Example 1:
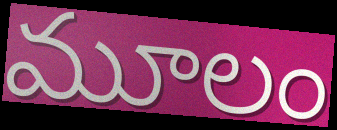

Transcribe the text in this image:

మూలం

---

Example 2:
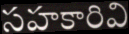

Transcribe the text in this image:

సహకారివి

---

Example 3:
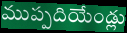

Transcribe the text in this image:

ముప్పదియేండ్లు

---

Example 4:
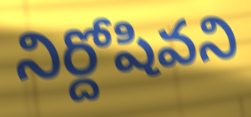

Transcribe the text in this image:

నిర్దోషివని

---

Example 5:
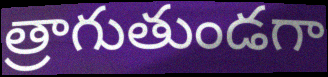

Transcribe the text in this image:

త్రాగుతుండగా